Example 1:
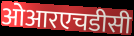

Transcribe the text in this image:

ओआरएचडीसी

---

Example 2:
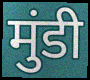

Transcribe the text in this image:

मुंडी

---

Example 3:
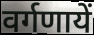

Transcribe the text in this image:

वर्गणायें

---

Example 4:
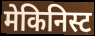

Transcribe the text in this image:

मेकिनिस्ट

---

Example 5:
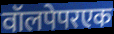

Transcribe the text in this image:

वॉलपेपरएक